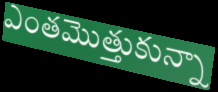
ఎంతమొత్తుకున్నా